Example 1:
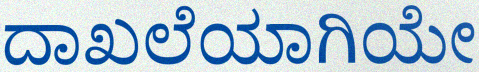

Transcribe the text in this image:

ದಾಖಲೆಯಾಗಿಯೇ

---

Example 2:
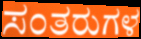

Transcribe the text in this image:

ಸಂತರುಗಳ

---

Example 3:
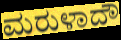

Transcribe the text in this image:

ಮರುಳಾದೌ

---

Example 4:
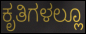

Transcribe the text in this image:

ಕೃತಿಗಳಲ್ಲೂ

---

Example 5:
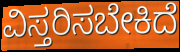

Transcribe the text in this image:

ವಿಸ್ತರಿಸಬೇಕಿದೆ